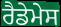
ਰੈਡੇਮੇਸ